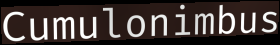
Cumulonimbus